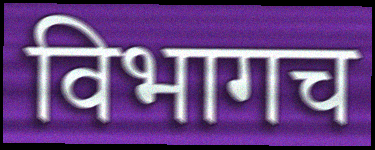
विभागच